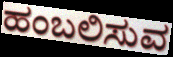
ಹಂಬಲಿಸುವ